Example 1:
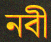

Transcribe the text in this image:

নবী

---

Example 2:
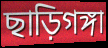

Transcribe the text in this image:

ছাড়িগঙ্গা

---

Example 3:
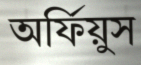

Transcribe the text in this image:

অর্ফিয়ুস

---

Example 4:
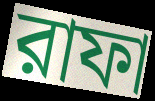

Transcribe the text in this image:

রাফা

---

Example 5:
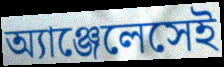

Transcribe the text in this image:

অ্যাঞ্জেলেসেই